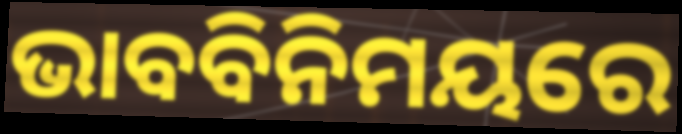
ଭାବବିନିମୟରେ